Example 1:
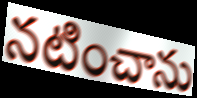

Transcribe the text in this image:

నటించాను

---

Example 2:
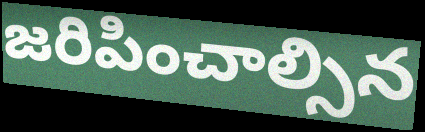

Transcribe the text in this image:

జరిపించాల్సిన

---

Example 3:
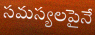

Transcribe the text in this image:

సమస్యలపైనే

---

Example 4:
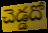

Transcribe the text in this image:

చెడ్డదో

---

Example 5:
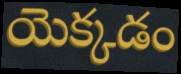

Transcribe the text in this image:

యెక్కడం